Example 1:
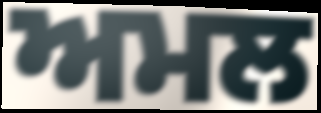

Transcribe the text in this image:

ਅਮਲ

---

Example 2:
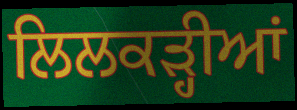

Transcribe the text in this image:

ਲਿਲਕੜ੍ਹੀਆਂ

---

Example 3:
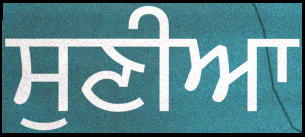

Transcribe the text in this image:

ਸੁਣੀਆ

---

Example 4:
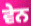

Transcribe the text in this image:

ਵੇਨ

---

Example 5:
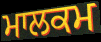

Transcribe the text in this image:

ਮਾਲਕਮ